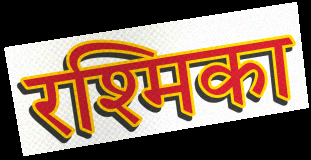
रश्मिका